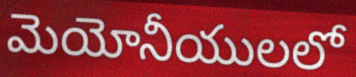
మెయోనీయులలో